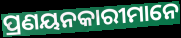
ପ୍ରଣୟନକାରୀମାନେ